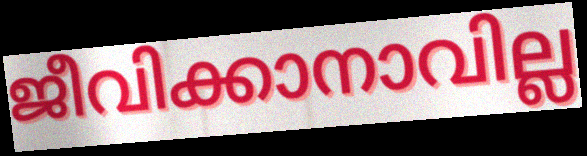
ജീവിക്കാനാവില്ല